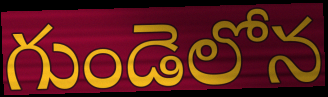
గుండెలోన